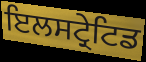
ਇਲਸਟ੍ਰੇਟਿਡ